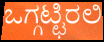
ಒಗ್ಗಟ್ಟಿರಲಿ